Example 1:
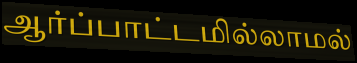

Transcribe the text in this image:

ஆர்ப்பாட்டமில்லாமல்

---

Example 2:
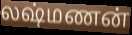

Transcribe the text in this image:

லஷ்மணன்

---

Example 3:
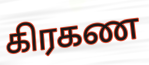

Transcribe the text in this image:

கிரகண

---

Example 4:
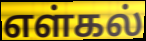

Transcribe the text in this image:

எள்கல்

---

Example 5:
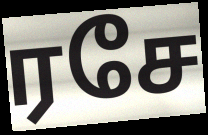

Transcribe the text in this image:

ரசே